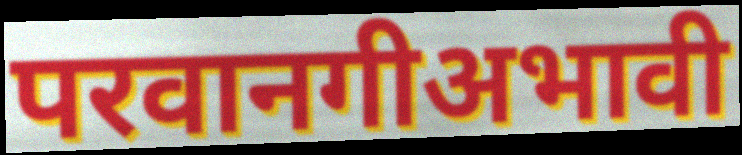
परवानगीअभावी